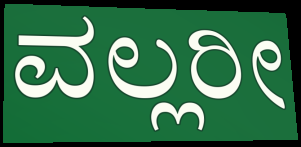
ವಲ್ಲರೀ